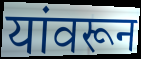
यांवरून